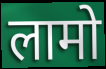
लामो